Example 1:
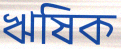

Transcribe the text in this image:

ঋষিক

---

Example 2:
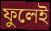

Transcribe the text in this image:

ফুলেই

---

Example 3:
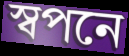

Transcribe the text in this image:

স্বপনে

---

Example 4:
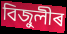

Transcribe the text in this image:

বিজুলীৰ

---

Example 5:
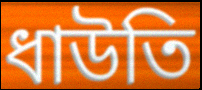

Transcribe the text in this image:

ধাউতি